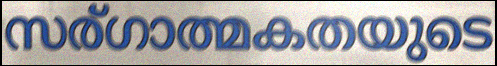
സര്ഗാത്മകതയുടെ